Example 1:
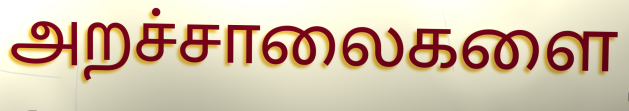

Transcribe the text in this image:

அறச்சாலைகளை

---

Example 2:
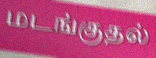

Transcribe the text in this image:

மடங்குதல்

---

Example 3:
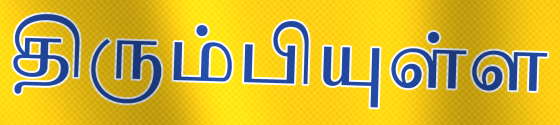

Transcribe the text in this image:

திரும்பியுள்ள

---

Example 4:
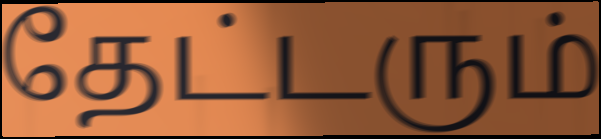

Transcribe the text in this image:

தேட்டரும்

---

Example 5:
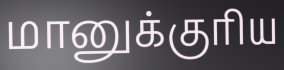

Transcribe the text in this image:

மானுக்குரிய